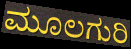
ಮೂಲಗುರಿ